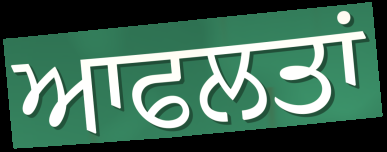
ਆਫਲਤਾਂ